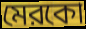
মেরকো